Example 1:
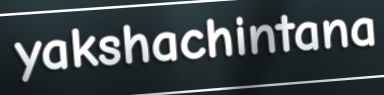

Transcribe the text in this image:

yakshachintana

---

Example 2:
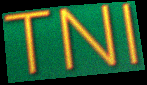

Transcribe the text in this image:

TNI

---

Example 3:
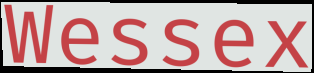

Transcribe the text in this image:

Wessex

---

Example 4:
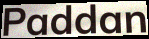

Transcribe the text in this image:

Paddan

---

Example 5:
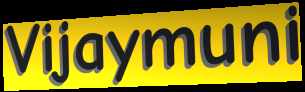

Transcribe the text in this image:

Vijaymuni